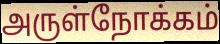
அருள்நோக்கம்